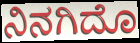
ನಿನಗಿದೊ